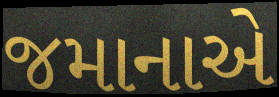
જમાનાએ